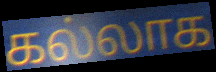
கல்லாக